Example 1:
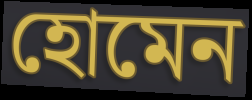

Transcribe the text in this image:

হোমেন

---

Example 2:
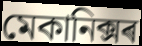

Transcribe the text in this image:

মেকানিক্সৰ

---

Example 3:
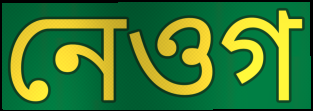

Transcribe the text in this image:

নেওগ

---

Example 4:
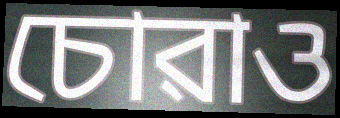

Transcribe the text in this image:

চোৱাও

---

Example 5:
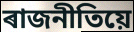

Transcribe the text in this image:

ৰাজনীতিয়ে